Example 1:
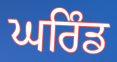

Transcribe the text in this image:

ਘਰਿੰਡ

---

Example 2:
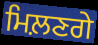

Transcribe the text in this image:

ਮਿਲ਼ਣਗੇ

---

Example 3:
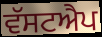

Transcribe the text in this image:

ਵੱਸਟਐਪ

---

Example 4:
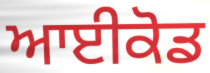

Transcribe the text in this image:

ਆਈਕੋਡ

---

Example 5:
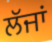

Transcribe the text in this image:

ਲੱਜਾਂ